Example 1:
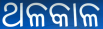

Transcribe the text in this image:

ଥଳକାଳ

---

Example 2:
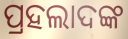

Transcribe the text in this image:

ପ୍ରହଲାଦଙ୍କ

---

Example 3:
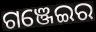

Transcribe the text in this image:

ଗଞ୍ଜେଇର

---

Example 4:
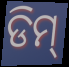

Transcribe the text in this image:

ଡିମ୍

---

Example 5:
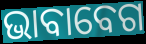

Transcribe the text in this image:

ଭାବାବେଗ